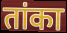
तांका